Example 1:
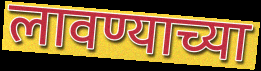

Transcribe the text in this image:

लावण्याच्या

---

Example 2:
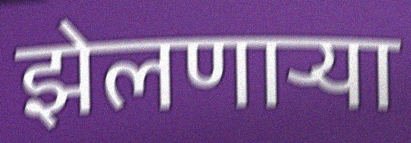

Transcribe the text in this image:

झेलणाऱ्या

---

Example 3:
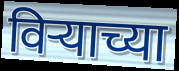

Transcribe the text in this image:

विर्‍याच्या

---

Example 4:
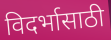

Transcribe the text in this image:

विदर्भासाठी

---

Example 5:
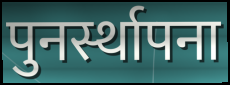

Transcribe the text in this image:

पुनर्स्थापना